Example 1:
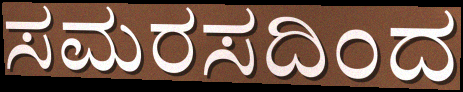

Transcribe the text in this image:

ಸಮರಸದಿಂದ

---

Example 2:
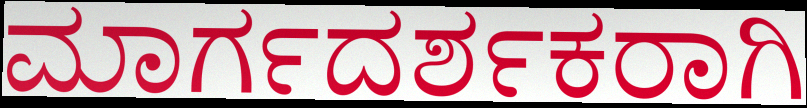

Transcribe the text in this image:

ಮಾರ್ಗದರ್ಶಕರಾಗಿ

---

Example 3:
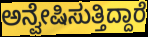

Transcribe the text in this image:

ಅನ್ವೇಷಿಸುತ್ತಿದ್ದಾರೆ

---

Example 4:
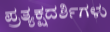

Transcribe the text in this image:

ಪ್ರತ್ಯಕ್ಷದರ್ಶಿಗಳು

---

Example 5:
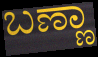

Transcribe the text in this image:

ಬಣ್ಣಾ